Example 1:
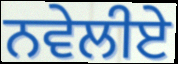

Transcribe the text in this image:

ਨਵੇਲੀਏ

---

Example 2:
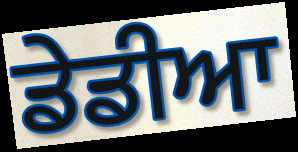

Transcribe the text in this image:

ਡੇਡੀਆ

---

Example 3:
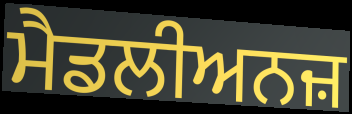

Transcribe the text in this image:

ਮੈਡਲੀਅਨਜ਼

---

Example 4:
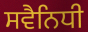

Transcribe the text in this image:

ਸਵੈਨਿਧੀ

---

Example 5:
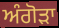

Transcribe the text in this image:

ਅੰਗੋੜਾ